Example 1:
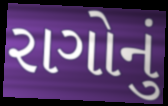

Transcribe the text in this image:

રાગોનું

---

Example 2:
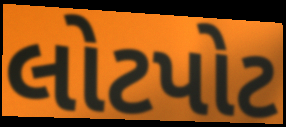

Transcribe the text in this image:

લોટપોટ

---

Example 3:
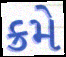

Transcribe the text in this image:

ક્રમે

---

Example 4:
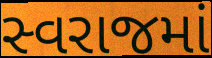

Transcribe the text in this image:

સ્વરાજમાં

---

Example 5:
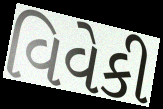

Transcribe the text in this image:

વિવેકી